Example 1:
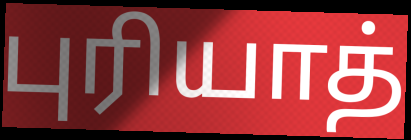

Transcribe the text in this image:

புரியாத்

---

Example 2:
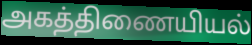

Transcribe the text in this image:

அகத்திணையியல்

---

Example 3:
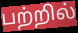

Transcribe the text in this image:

பற்றில்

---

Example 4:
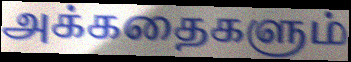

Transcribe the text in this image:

அக்கதைகளும்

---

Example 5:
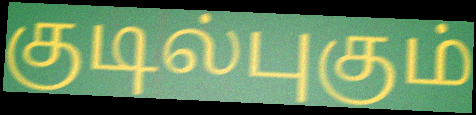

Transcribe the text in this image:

குடில்புகும்